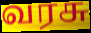
வரசு